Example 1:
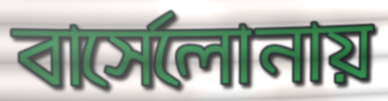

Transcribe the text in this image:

বার্সেলোনায়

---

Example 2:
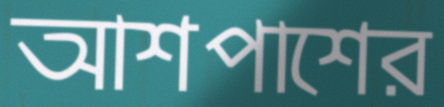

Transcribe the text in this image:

আশপাশের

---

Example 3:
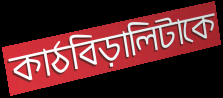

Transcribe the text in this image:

কাঠবিড়ালিটাকে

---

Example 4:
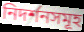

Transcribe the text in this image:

নিদর্শনসমূহ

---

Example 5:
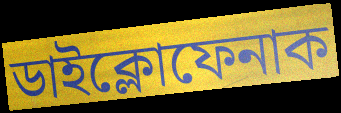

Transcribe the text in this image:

ডাইক্লোফেনাক